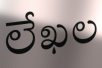
లేఖల